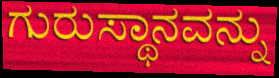
ಗುರುಸ್ಥಾನವನ್ನು